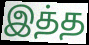
இத்த